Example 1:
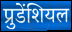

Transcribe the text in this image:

प्रुडेंशियल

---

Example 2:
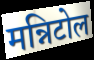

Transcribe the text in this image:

मन्निटोल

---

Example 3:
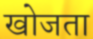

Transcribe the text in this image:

खोजता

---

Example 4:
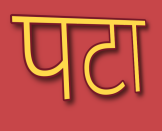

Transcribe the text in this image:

पटा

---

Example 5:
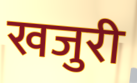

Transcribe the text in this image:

खजुरी